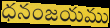
ధనంజయము